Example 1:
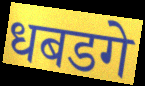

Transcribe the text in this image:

धबडगे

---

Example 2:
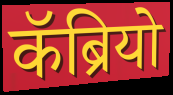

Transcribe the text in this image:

कॅब्रियो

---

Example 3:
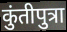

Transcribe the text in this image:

कुंतीपुत्रा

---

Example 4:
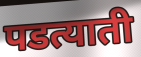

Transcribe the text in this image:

पडत्याती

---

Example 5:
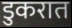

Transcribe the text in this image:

डुकरात